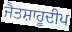
ਜੈਤਸ਼ਾਹੂਦੀਪ